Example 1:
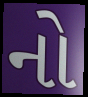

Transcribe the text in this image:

નો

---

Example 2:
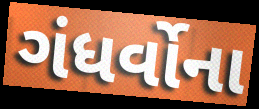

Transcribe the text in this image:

ગંધર્વોના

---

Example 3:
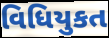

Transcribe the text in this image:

વિધિયુકત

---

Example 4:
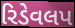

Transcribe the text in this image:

રિડેવલપ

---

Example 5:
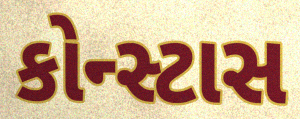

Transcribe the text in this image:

કોન્સ્ટાસ